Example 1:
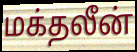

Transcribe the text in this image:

மக்தலீன்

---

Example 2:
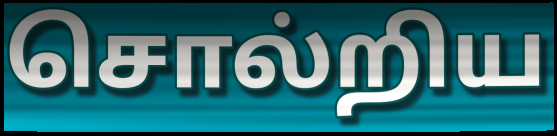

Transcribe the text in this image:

சொல்றிய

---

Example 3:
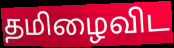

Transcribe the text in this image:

தமிழைவிட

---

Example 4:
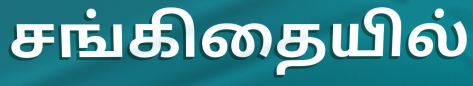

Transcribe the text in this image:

சங்கிதையில்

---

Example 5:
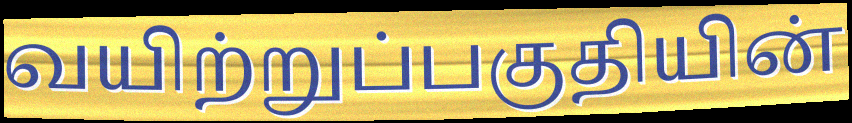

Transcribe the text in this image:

வயிற்றுப்பகுதியின்